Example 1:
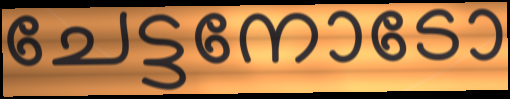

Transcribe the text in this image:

ചേട്ടനോടോ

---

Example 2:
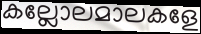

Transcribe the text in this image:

കല്ലോലമാലകളേ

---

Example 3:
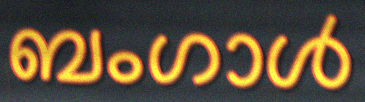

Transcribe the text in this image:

ബംഗാൾ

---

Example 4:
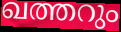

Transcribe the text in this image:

ഖത്തറും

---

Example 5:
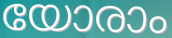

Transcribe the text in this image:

യോരാം